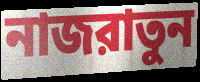
নাজরাতুন